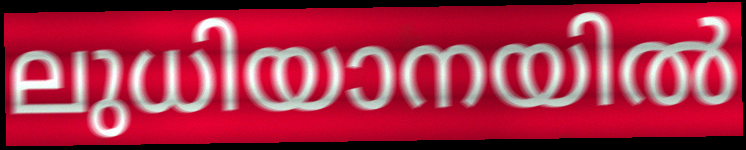
ലുധിയാനയിൽ